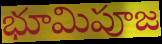
భూమిపూజ